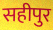
सहीपुर